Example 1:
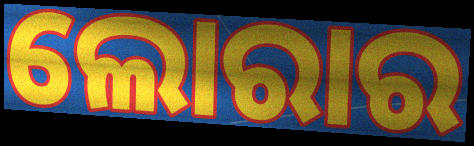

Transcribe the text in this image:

ଲୋରାର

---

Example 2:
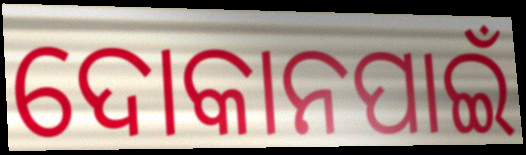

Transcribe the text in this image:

ଦୋକାନପାଇଁ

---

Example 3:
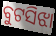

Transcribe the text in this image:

ବୁଟସିଝା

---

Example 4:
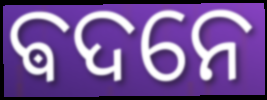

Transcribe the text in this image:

ଵଦନେ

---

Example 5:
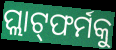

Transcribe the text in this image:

ପ୍ଲାଟ୍‌ଫର୍ମକୁ